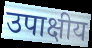
उपाक्षीय